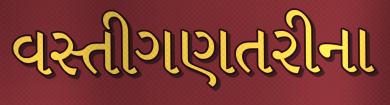
વસ્તીગણતરીના